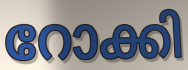
റോക്കി